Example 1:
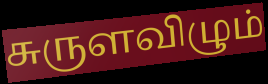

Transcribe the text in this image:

சுருளவிழும்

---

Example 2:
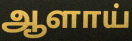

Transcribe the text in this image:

ஆளாய்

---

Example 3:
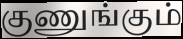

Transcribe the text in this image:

குணுங்கும்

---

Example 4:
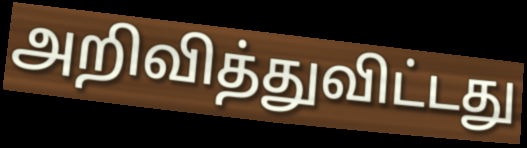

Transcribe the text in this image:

அறிவித்துவிட்டது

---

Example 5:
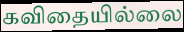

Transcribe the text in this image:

கவிதையில்லை